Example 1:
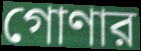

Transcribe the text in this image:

গোণার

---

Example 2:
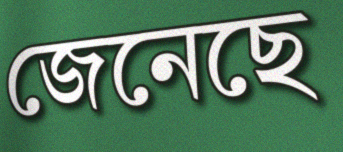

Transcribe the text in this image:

জেনেছে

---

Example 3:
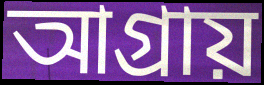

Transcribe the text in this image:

আগ্রায়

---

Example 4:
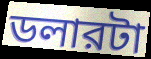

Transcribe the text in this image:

ডলারটা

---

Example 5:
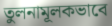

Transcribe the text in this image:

তুলনামূলকভাবে